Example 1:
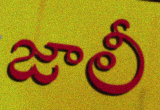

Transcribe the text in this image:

జాలీ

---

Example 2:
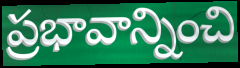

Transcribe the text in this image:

ప్రభావాన్నించి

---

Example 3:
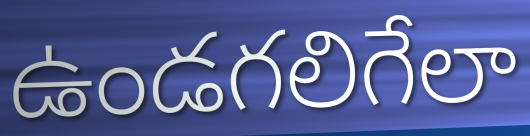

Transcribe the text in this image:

ఉండగలిగేలా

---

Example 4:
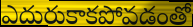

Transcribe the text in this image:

ఎదురుకాకపోవడంతో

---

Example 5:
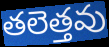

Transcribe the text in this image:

తలెత్తవు